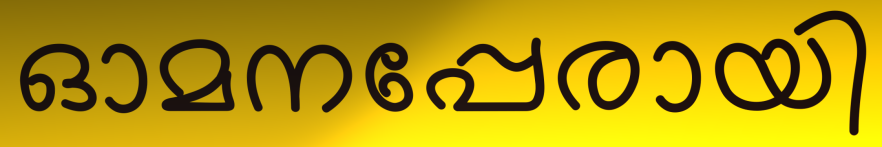
ഓമനപ്പേരായി